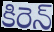
కిరెన్